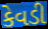
કેવડી